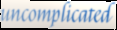
uncomplicated